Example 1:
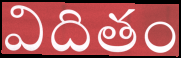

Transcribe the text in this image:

విదితం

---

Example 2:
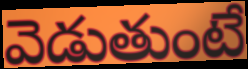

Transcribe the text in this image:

వెడుతుంటే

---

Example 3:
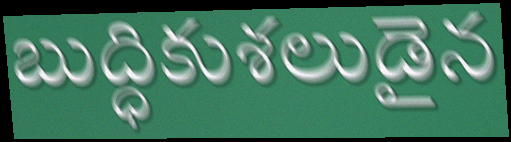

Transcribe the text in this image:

బుద్ధికుశలుడైన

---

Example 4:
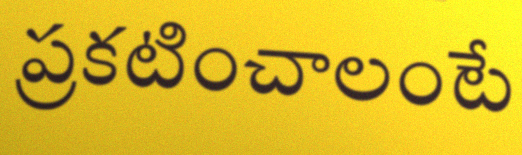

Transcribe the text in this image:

ప్రకటించాలంటే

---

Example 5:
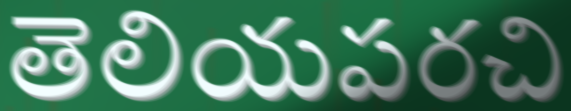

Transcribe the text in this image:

తెలియపరచి